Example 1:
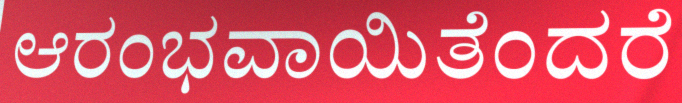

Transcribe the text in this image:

ಆರಂಭವಾಯಿತೆಂದರೆ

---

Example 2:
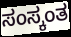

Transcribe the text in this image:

ಸಂಸ್ಕಂತ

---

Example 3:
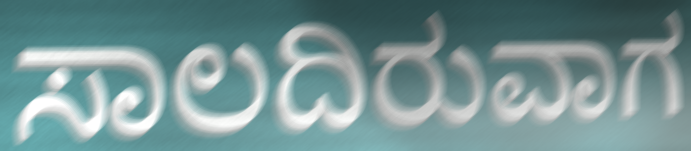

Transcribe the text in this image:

ಸಾಲದಿರುವಾಗ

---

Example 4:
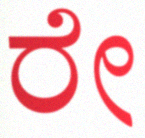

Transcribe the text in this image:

ರೇ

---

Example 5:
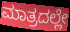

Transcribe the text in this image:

ಮಾತ್ರದಲ್ಲೇ